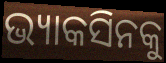
ଭ୍ୟାକସିନକୁ